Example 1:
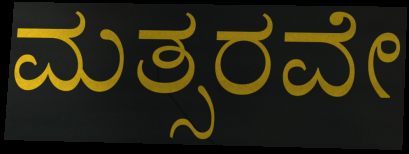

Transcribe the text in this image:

ಮತ್ಸರವೇ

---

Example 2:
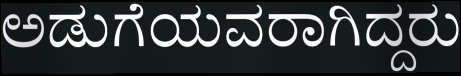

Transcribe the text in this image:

ಅಡುಗೆಯವರಾಗಿದ್ದರು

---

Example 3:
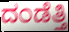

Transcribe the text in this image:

ದಂಡೆತ್ತಿ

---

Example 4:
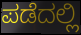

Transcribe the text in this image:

ಪಡೆದಲ್ಲಿ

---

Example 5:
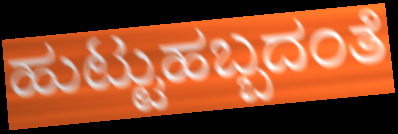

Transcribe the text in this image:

ಹುಟ್ಟುಹಬ್ಬದಂತೆ